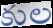
కుల